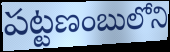
పట్టణంబులోని